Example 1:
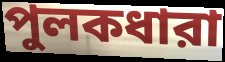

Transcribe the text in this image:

পুলকধারা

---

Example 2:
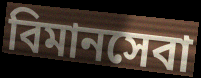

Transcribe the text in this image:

বিমানসেবা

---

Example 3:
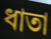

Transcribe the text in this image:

ধাতা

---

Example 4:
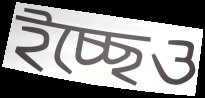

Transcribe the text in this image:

ইচ্ছেও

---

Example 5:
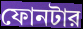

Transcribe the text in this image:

ফোনটার